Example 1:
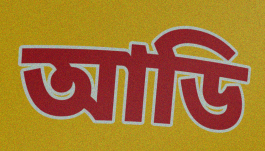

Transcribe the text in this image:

আডি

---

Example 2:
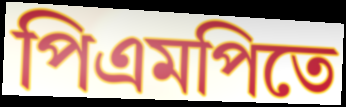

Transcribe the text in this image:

পিএমপিতে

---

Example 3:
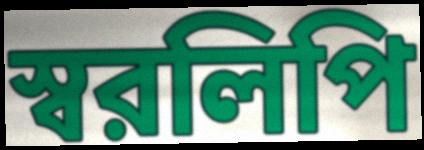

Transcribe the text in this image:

স্বরলিপি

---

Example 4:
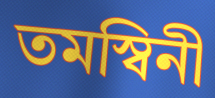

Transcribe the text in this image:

তমস্বিনী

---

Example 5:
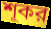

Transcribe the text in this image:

শূকর